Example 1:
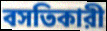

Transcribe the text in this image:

বসতিকারী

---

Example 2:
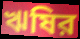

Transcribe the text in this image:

ঋষির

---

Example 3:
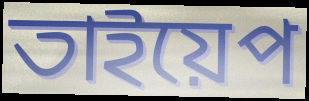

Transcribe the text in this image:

তাইয়েপ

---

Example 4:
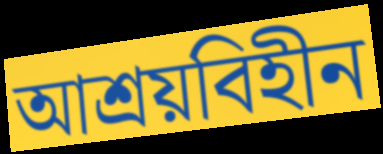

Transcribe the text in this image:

আশ্রয়বিহীন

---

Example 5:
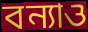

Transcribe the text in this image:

বন্যাও